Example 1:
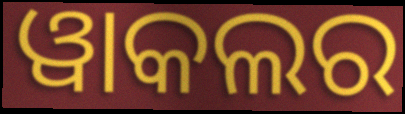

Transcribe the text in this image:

ୱାକଲର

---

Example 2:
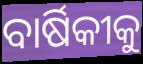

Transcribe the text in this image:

ବାର୍ଷିକୀକୁ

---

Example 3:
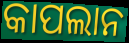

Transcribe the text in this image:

କାପଲାନ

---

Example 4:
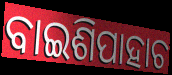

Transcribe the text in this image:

ବାଇଶିପାହାଚ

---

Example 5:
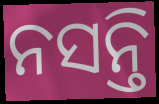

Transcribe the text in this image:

ନସନ୍ତି